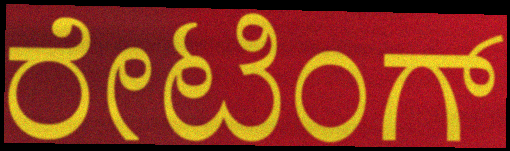
ರೇಟಿಂಗ್